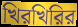
খিরখিরির